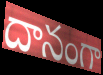
దానంగా